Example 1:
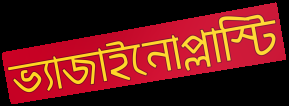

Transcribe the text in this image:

ভ্যাজাইনোপ্লাস্টি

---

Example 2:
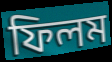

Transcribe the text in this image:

ফিলম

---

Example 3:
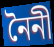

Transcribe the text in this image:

নৈনী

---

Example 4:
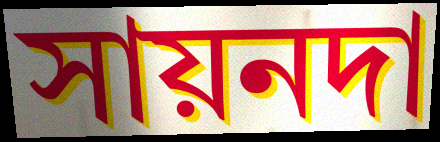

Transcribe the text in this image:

সায়নদা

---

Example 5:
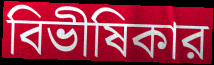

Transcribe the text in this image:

বিভীষিকার